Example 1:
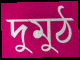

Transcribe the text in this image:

দুমুঠ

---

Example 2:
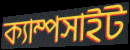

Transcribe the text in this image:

ক্যাম্পসাইট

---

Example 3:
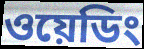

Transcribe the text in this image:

ওয়েডিং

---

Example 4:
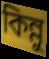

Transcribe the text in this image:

কিন্নু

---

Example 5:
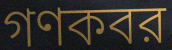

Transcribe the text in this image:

গণকবর